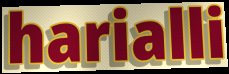
harialli